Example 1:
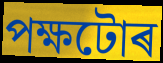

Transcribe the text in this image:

পক্ষটোৰ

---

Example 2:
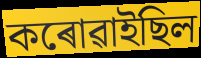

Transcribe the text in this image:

কৰোৱাইছিল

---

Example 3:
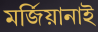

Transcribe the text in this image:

মৰ্জিয়ানাই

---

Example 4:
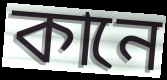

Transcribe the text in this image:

কানে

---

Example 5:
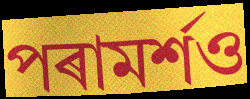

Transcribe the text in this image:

পৰামৰ্শও